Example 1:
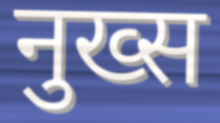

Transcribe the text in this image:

नुख्स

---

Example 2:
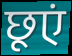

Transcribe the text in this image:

छूएं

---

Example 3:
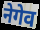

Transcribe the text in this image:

नेगेव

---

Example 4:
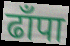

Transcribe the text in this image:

ढाँपा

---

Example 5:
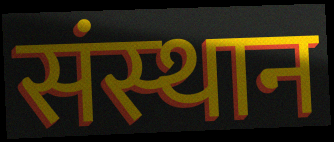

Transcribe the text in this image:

संस्‍थान